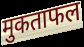
मुकताफल